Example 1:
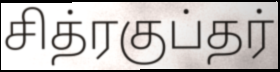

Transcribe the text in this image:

சித்ரகுப்தர்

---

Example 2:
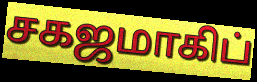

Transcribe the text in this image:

சகஜமாகிப்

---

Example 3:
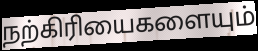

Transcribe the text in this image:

நற்கிரியைகளையும்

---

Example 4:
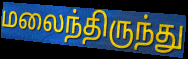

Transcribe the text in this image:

மலைந்திருந்து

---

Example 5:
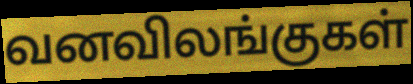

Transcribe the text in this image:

வனவிலங்குகள்